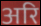
अरि